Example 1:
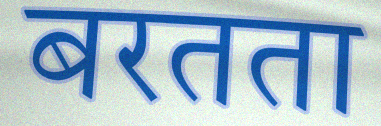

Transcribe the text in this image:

बरतता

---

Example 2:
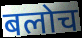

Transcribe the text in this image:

बलोच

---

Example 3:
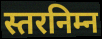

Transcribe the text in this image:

स्तरनिम्न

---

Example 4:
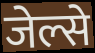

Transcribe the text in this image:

जेल्से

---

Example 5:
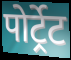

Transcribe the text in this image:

पोर्ट्रेट